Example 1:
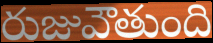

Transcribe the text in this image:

రుజువౌతుంది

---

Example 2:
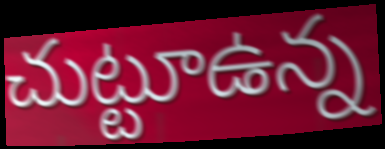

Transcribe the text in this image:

చుట్టూఉన్న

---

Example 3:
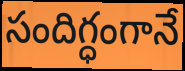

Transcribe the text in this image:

సందిగ్ధంగానే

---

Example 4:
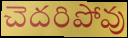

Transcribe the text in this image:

చెదరిపోవు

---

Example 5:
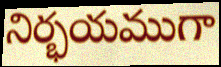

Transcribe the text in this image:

నిర్భయముగా